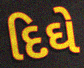
દિઘે